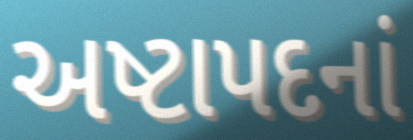
અષ્ટાપદનાં